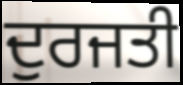
ਦੁਰਜਤੀ